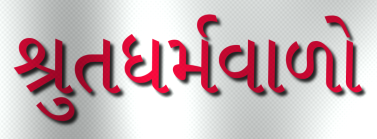
શ્રુતધર્મવાળો